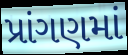
પ્રાંગણમાં